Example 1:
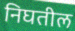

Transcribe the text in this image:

निघतील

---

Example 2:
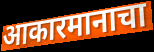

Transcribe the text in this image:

आकारमानाचा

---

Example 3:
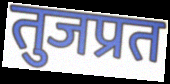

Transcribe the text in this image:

तुजप्रत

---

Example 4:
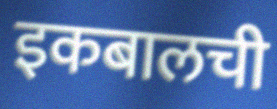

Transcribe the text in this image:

इकबालची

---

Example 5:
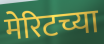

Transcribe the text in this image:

मेरिटच्या